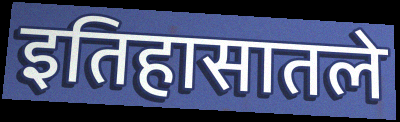
इतिहासातले